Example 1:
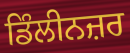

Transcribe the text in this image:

ਡਿੰਲੀਨਜ਼ਰ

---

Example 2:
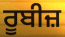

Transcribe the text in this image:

ਰੂਬੀਜ਼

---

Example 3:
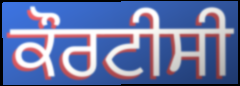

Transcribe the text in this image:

ਕੌਰਟੀਸੀ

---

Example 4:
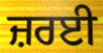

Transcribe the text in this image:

ਜ਼ਰਈ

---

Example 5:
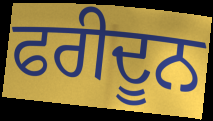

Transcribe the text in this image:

ਫਰੀਦੂਨ